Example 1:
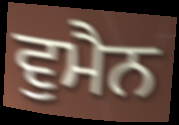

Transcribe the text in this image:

ਵੁਮੈਨ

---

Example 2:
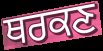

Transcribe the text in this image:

ਥਰਕਣ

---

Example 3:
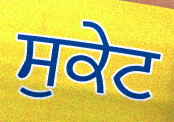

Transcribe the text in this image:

ਸੁਕੇਟ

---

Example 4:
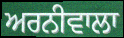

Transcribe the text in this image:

ਅਰਨੀਵਾਲਾ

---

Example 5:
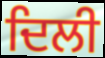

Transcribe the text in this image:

ਦਿਲੀ